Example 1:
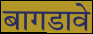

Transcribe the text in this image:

बागडावे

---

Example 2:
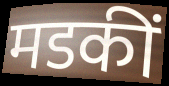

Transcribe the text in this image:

मडकीं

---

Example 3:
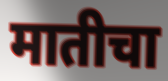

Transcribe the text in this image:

मातीचा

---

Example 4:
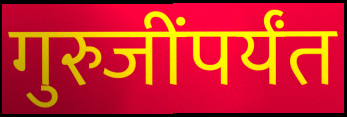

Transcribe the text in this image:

गुरुजींपर्यंत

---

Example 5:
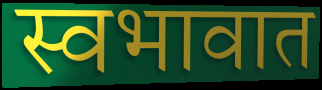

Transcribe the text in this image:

स्वभावात